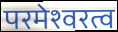
परमेश्वरत्व